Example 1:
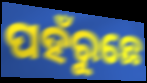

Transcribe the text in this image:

ପହଁରୁଛେ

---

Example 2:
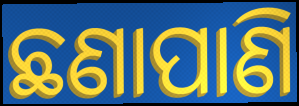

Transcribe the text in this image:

ଛଣାପାଣି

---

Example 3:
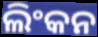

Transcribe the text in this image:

ଲିଂକନ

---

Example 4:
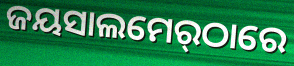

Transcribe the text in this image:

ଜୟସାଲମେର୍‌ଠାରେ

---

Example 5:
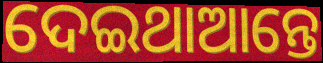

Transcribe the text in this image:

ଦେଇଥାଆନ୍ତେ